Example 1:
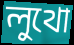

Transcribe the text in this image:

লুথো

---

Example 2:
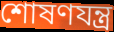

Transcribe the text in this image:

শোষণযন্ত্র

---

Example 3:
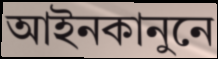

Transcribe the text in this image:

আইনকানুনে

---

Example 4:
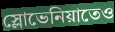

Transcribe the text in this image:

স্লোভেনিয়াতেও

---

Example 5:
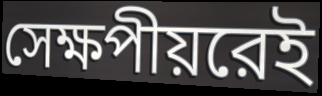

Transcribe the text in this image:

সেক্ষপীয়রেই